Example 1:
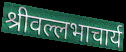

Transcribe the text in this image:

श्रीवल्लभाचार्य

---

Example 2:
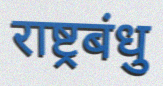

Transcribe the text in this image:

राष्ट्रबंधु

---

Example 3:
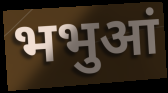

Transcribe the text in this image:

भभुआं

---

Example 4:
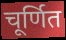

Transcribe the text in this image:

चूर्णित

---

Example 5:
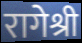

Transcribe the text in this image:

रागेश्री